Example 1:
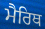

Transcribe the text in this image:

ਮੈਰਿਥ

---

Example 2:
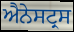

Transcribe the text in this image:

ਐਨੇਸਟ੍ਰਸ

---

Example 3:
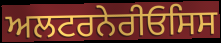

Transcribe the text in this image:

ਅਲਟਰਨੇਰੀਓਸਿਸ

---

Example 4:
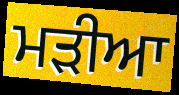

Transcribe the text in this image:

ਮਡ਼ੀਆ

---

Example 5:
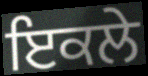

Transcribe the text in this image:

ਇਕਲੇ